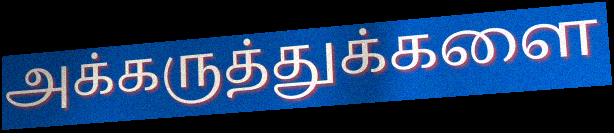
அக்கருத்துக்களை